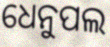
ଧେନୁପଲ